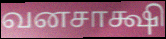
வனசாக்ஷி